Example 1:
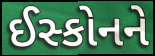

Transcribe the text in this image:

ઈસ્કોનને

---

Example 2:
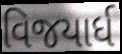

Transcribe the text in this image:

વિજયાર્ધ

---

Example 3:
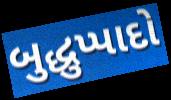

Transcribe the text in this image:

બુદ્ધુપ્પાદો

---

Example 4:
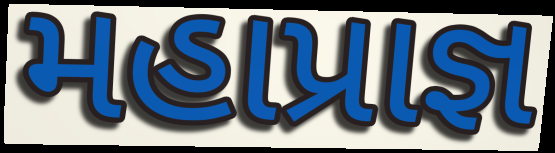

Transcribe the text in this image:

મહાપ્રાજ્ઞ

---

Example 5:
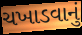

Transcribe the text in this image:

ચખાડવાનું